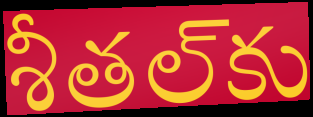
శీతల్‌కు